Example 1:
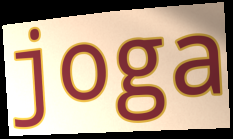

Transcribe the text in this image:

joga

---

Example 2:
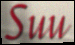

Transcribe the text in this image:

Suu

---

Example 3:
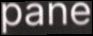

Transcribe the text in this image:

pane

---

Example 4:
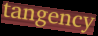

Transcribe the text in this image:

tangency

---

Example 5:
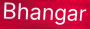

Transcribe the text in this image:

Bhangar